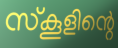
സ്കൂളിന്റെ